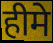
हीमे